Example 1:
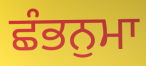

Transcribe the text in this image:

ਛੰਭਨੁਮਾ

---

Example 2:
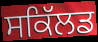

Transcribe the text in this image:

ਸਕਿੱਲਡ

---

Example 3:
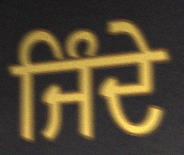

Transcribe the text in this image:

ਜਿੰਦੇ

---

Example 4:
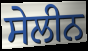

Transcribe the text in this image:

ਸੇਲੀਨ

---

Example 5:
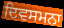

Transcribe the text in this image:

ਦਿਵਸਮਨਾ